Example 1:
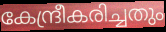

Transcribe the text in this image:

കേന്ദ്രീകരിച്ചതും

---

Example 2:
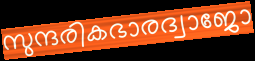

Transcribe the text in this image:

സുന്ദരികഭാരദ്വാജോ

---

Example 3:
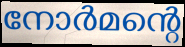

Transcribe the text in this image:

നോർമന്റെ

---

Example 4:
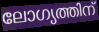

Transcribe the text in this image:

ലോഗ്യത്തിന്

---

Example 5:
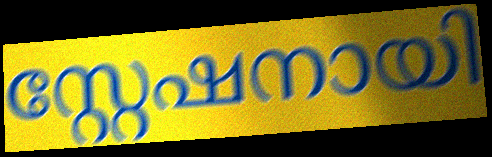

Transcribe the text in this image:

സ്റ്റേഷനായി